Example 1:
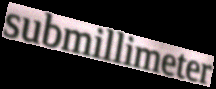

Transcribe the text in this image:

submillimeter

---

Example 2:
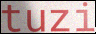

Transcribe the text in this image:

tuzi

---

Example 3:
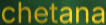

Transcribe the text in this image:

chetana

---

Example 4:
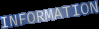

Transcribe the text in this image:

INFORMATION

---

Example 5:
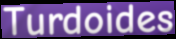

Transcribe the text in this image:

Turdoides